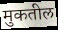
मुकतील